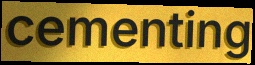
cementing